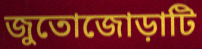
জুতোজোড়াটি